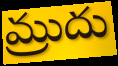
మ్రుదు